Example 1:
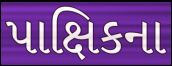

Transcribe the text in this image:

પાક્ષિકના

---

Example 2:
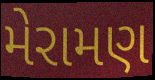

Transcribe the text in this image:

મેરામણ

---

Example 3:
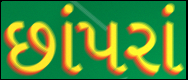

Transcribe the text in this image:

છાંપરાં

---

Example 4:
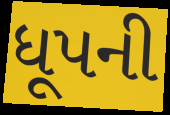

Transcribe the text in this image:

ધૂપની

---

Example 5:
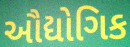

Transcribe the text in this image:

ઔદ્યોગિક